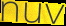
nuv